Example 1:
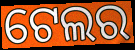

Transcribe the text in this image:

ଟେଲର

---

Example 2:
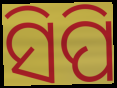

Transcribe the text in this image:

ସିପି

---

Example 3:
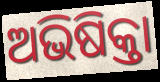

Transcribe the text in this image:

ଅଭିଷିକ୍ତା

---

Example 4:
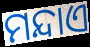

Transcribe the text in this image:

ମନ୍ଦାଏ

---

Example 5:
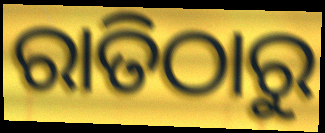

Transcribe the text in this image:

ରାତିଠାରୁ